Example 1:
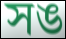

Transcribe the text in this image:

সঙ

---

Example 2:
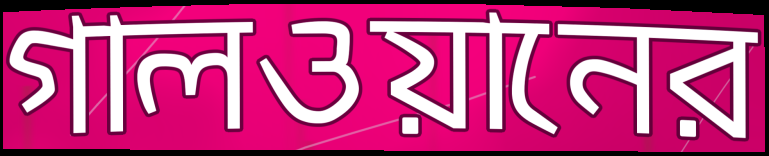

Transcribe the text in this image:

গালওয়ানের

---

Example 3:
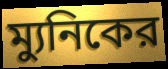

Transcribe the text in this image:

ম্যুনিকের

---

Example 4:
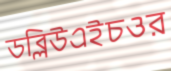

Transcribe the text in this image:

ডব্লিউএইচওর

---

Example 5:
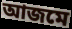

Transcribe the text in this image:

আজমে